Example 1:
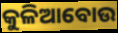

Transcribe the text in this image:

କୁଳିଆବୋଉ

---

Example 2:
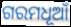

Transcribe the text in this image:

ଗରମଧୂଆଁ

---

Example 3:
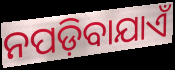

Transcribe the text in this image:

ନପଡ଼ିବାଯାଏଁ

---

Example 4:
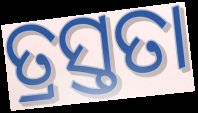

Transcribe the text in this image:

ତ୍ରସ୍ତତା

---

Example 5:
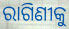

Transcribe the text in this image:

ରାଗିଣୀକୁ